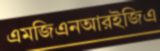
এমজিএনআরইজিএ